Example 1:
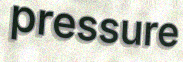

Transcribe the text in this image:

pressure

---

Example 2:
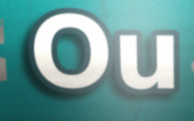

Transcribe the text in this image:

Ou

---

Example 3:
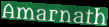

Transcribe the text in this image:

Amarnath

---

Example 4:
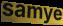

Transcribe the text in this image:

samye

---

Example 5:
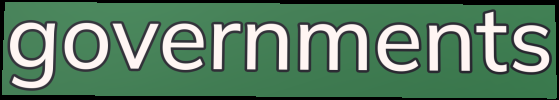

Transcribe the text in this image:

governments